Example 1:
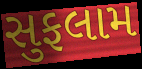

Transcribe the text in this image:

સુફલામ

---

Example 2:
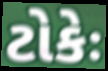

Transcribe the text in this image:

ટોકેઃ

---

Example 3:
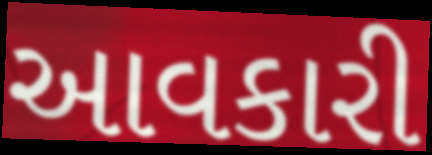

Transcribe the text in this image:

આવકારી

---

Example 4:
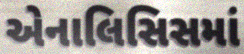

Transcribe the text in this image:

એનાલિસિસમાં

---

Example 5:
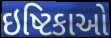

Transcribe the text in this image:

ઇષ્ટિકાઓ